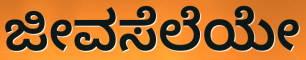
ಜೀವಸೆಲೆಯೇ